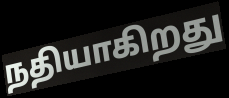
நதியாகிறது